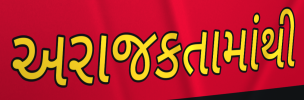
અરાજકતામાંથી